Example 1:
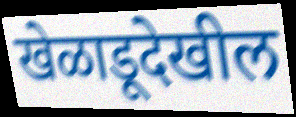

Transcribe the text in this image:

खेळाडूदेखील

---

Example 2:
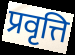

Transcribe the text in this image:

प्रवृत्ति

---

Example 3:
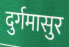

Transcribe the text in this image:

दुर्गमासुर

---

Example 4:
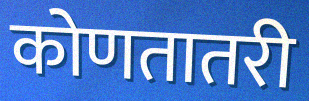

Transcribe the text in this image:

कोणतातरी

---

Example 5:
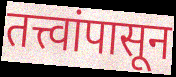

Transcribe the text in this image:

तत्त्वांपासून